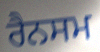
ਰੈਨਸਮ